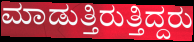
ಮಾಡುತ್ತಿರುತ್ತಿದ್ದರು